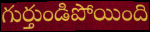
గుర్తుండిపోయింది